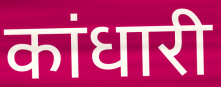
कांधारी